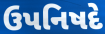
ઉપનિષદે